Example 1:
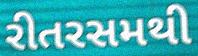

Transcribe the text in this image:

રીતરસમથી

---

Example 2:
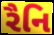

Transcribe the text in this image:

રૈનિ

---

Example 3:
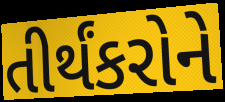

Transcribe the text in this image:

તીર્થંકરોને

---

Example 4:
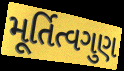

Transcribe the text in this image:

મૂર્તિત્વગુણ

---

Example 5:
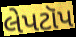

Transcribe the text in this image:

લેપટૉપ